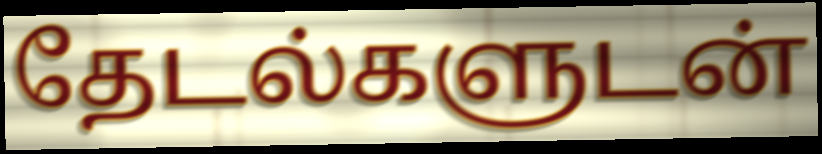
தேடல்களுடன்